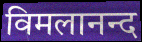
विमलानन्द